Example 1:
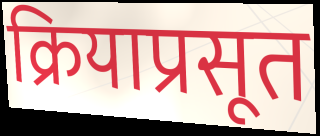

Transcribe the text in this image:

क्रियाप्रसूत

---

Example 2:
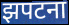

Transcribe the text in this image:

झपटना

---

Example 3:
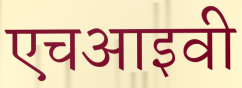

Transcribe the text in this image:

एचआइवी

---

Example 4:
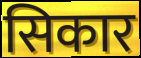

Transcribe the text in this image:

सिकार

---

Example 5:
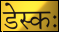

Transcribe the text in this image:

डेस्कः